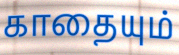
காதையும்